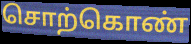
சொற்கொண்